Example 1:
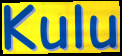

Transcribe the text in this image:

Kulu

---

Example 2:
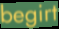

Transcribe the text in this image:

begirt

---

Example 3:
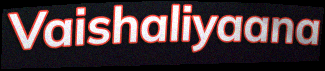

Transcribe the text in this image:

Vaishaliyaana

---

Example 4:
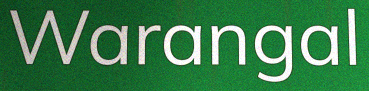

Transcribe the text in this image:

Warangal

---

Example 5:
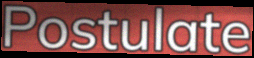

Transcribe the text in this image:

Postulate